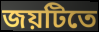
জয়টিতে